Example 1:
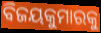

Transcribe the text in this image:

ବିଜୟକୁମାରକୁ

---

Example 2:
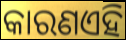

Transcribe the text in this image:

କାରଣଏହି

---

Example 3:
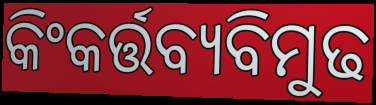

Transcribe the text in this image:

କିଂକର୍ତ୍ତବ୍ଯବିମୁଢ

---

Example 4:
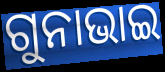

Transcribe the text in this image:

ଗୁନାଭାଇ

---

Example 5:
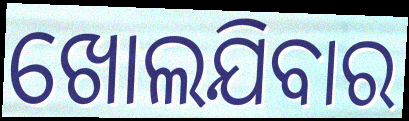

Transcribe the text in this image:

ଖୋଲଯିବାର